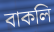
বাকলি